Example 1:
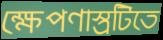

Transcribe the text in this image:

ক্ষেপণাস্ত্রটিতে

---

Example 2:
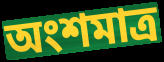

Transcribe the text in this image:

অংশমাত্র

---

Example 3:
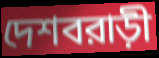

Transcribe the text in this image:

দেশবরাড়ী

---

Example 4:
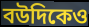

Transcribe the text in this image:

বউদিকেও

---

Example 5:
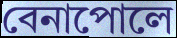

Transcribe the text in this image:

বেনাপোলে